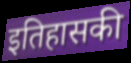
इतिहासकी